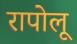
रापोलू